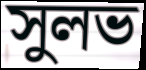
সুলভ